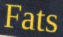
Fats